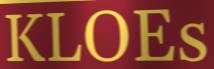
KLOEs